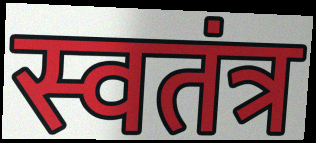
स्वतंत्र